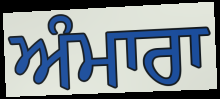
ਅੰਮਾਰਾ